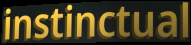
instinctual